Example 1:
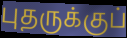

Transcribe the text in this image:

புதருக்குப்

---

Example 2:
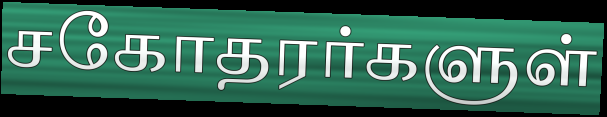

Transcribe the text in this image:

சகோதரர்களுள்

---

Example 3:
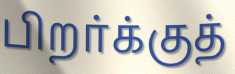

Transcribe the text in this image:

பிறர்க்குத்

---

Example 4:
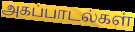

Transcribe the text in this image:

அகப்பாடல்கள்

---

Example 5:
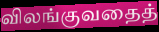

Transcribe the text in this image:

விலங்குவதைத்